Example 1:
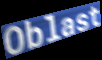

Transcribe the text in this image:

Oblast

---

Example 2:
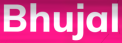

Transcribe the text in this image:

Bhujal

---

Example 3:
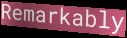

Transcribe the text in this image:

Remarkably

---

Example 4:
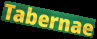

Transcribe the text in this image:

Tabernae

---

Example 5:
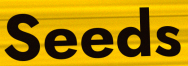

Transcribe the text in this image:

Seeds